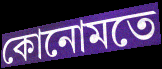
কোনোমতে